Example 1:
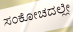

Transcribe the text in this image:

ಸಂಕೋಚದಲ್ಲೇ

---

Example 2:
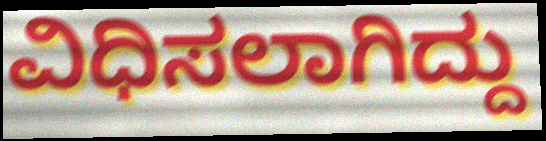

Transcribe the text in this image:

ವಿಧಿಸಲಾಗಿದ್ದು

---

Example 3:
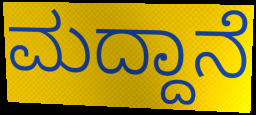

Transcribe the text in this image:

ಮದ್ದಾನೆ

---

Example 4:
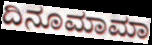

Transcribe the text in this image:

ದಿನೂಮಾಮಾ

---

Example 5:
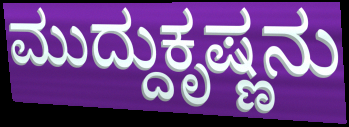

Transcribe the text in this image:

ಮುದ್ದುಕೃಷ್ಣನು